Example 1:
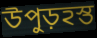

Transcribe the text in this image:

উপুড়হস্ত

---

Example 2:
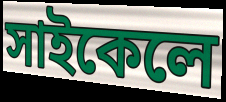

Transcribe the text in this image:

সাইকেলে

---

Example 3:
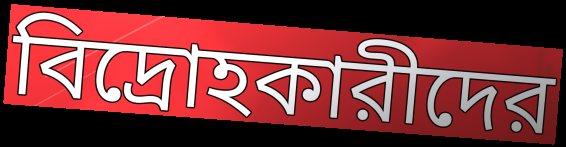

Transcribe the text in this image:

বিদ্রোহকারীদের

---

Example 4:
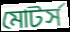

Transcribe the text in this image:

মোটর্স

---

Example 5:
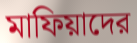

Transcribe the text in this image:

মাফিয়াদের